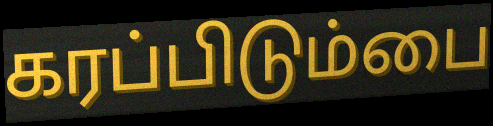
கரப்பிடும்பை